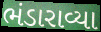
ભંડારાવ્યા